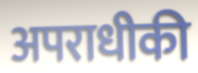
अपराधीकी